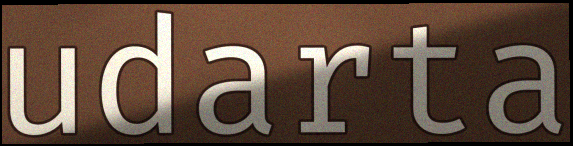
udarta